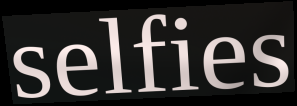
selfies